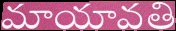
మాయావతి